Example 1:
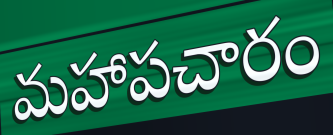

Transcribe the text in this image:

మహాపచారం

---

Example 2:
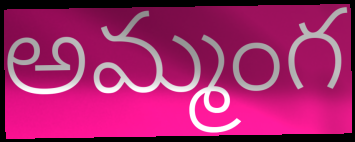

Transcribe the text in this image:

అమ్మంగ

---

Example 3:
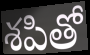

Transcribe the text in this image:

శపితో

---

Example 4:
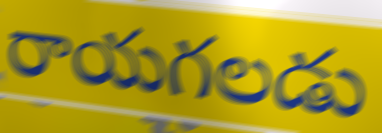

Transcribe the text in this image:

రాయగలడు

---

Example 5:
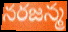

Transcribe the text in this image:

నరజన్మ